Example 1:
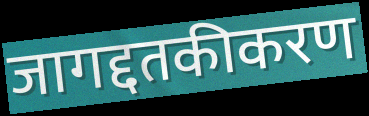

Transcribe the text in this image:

जागद्दतकीकरण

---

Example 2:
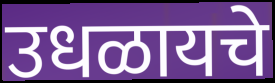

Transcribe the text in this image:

उधळायचे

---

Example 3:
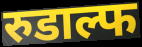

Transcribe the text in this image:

रुडाल्फ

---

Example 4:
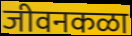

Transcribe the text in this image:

जीवनकळा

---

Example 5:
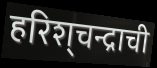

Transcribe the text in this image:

हरिश्चन्द्राची